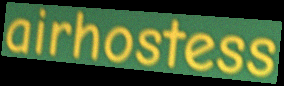
airhostess